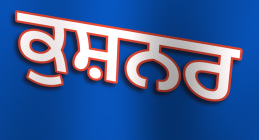
ਕੁਸ਼ਨਰ